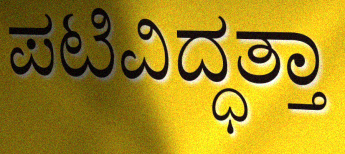
ಪಟಿವಿದ್ಧತ್ತಾ